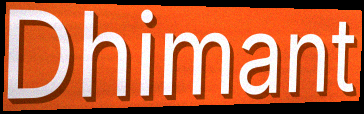
Dhimant